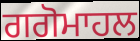
ਗਗੋਮਾਹਲ